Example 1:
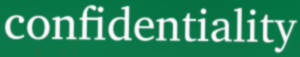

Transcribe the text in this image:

confidentiality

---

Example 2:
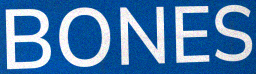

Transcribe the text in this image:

BONES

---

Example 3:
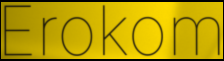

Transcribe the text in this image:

Erokom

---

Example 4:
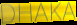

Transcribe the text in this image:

DHAKA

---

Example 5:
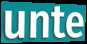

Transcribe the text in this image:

unte